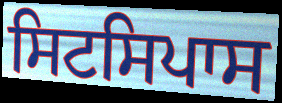
ਸਿਟਸਿਪਾਸ